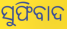
ସୁଫିବାଦ